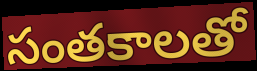
సంతకాలతో